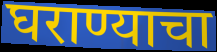
घराण्याचा